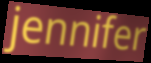
jennifer